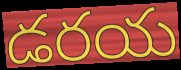
డరయ